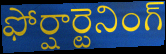
ఫోర్షార్టెనింగ్